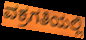
ವಕ್ರಗತಿಯಲ್ಲಿ